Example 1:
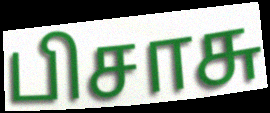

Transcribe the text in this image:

பிசாசு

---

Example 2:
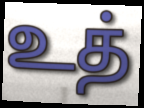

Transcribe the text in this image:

உத்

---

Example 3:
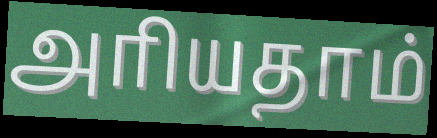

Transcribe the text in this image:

அரியதாம்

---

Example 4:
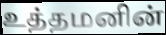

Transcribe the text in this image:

உத்தமனின்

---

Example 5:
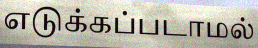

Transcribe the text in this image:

எடுக்கப்படாமல்